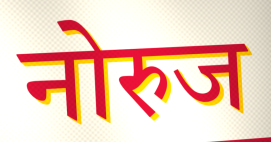
नोरुज